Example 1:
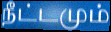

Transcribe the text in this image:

நீட்டமும்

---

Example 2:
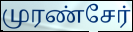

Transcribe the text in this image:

முரண்சேர்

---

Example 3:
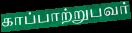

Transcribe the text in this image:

காப்பாற்றுபவர்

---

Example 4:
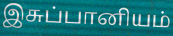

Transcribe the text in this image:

இசுப்பானியம்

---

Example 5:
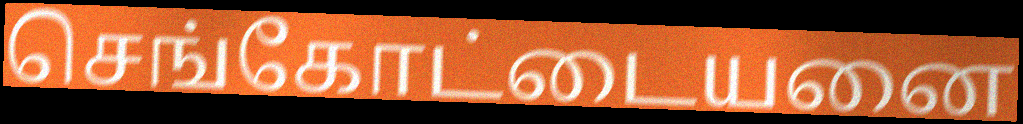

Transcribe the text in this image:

செங்கோட்டையனை